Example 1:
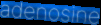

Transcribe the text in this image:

adenosine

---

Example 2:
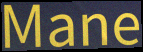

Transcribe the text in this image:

Mane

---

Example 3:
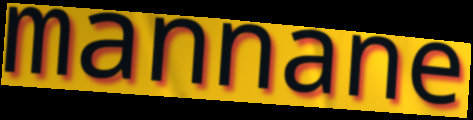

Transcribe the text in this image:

mannane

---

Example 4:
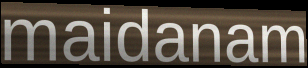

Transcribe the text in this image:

maidanam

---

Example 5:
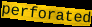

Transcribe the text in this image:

perforated